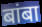
बांबा